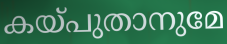
കയ്പുതാനുമേ